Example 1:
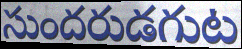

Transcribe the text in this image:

సుందరుడగుట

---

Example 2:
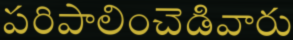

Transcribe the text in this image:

పరిపాలించెడివారు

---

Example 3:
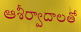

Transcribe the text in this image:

ఆశీర్వాదాలతో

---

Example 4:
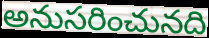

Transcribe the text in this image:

అనుసరించునది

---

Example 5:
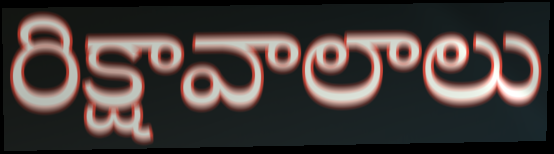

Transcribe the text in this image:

రిక్షావాలాలు